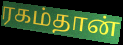
ரகம்தான்